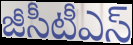
జీసీటీఎస్